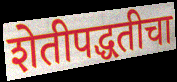
शेतीपद्धतीचा